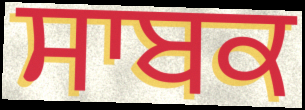
ਸਾਬਕ